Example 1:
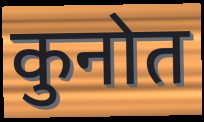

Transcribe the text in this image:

कुनोत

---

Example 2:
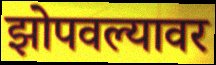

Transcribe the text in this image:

झोपवल्यावर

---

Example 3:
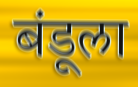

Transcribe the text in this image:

बंडूला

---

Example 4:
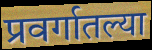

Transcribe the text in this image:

प्रवर्गातल्या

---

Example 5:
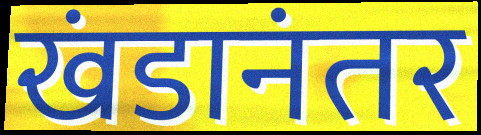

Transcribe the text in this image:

खंडानंतर